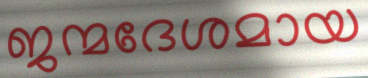
ജന്മദേശമായ